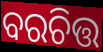
ବରଚିତ୍ତ